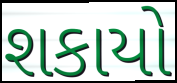
શકાયો